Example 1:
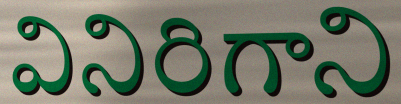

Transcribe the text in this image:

వినిరిగాని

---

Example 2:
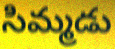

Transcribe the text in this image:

సిమ్మడు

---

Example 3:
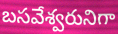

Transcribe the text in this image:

బసవేశ్వరునిగా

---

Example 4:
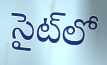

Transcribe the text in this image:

సైట్‌లో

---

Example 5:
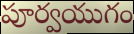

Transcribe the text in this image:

పూర్వయుగం